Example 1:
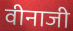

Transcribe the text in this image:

वीनाजी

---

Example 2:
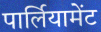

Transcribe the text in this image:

पार्लियामेंट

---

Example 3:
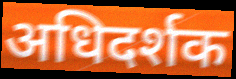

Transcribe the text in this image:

अधिदर्शक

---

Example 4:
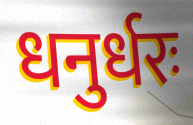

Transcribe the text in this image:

धनुर्धरः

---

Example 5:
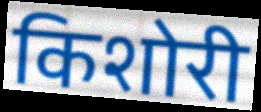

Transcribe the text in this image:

किशोरी